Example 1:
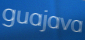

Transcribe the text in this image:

guajava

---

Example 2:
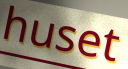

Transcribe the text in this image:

huset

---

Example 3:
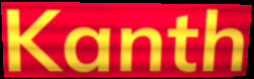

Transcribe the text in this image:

Kanth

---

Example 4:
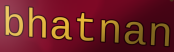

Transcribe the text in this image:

bhatnan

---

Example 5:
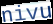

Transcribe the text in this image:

nivu